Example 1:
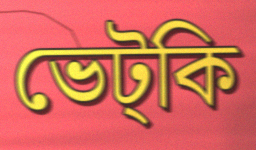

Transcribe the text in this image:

ভেট্কি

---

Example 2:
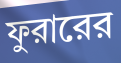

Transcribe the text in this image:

ফুরারের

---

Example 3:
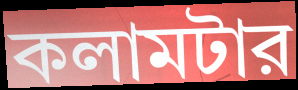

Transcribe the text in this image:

কলামটার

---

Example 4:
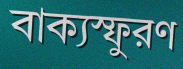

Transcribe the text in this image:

বাক্যস্ফুরণ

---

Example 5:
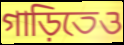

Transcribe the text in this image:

গাড়িতেও